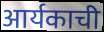
आर्यकाची